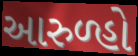
આરુળ્હો